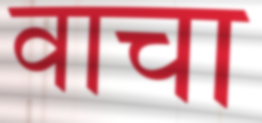
वाचा